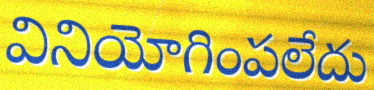
వినియోగింపలేదు